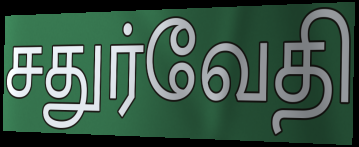
சதுர்வேதி